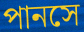
পানসে